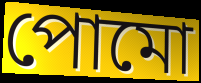
পোমো